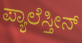
ಪ್ಯಾಲೆಸ್ತೀನ್